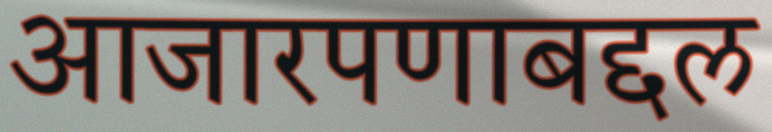
आजारपणाबद्दल